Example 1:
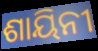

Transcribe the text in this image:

ଶାୟିନୀ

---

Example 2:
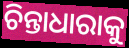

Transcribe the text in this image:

ଚିନ୍ତାଧାରାକୁ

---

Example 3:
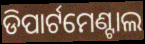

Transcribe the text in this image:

ଡିପାର୍ଟମେଣ୍ଟାଲ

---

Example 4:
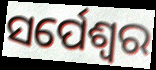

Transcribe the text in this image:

ସର୍ପେଶ୍ଵର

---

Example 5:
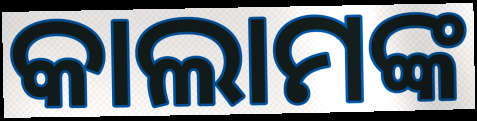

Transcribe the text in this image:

କାଲାମଙ୍କ